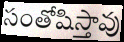
సంతోషిస్తావు